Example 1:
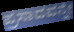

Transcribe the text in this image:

ಪ್ರಸಾದವನ್ನೇ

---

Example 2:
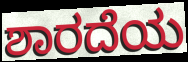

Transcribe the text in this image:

ಶಾರದೆಯ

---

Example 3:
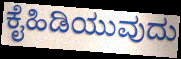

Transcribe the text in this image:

ಕೈಹಿಡಿಯುವುದು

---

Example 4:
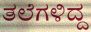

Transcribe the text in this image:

ತಲೆಗಳಿದ್ದ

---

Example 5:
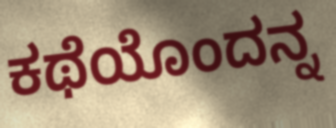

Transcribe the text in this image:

ಕಥೆಯೊಂದನ್ನ